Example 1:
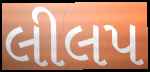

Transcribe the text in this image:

લીલપ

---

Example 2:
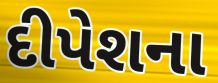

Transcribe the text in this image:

દીપેશના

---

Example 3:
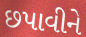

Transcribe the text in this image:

છપાવીને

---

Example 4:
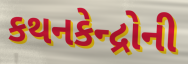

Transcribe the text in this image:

કથનકેન્દ્રોની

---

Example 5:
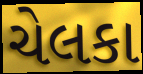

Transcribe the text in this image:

ચેલકા